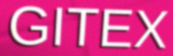
GITEX